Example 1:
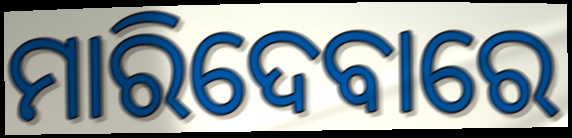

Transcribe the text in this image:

ମାରିଦେବାରେ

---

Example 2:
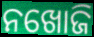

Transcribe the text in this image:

ନଖୋଜି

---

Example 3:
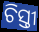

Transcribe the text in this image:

ଚିସ୍ତୀ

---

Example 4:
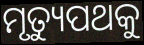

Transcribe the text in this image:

ମୃତ୍ୟୁପଥକୁ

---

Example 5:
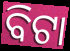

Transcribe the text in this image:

ବିଟା